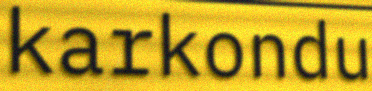
karkondu